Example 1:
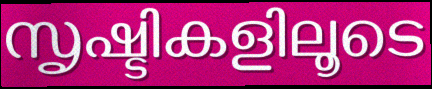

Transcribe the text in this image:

സൃഷ്ടികളിലൂടെ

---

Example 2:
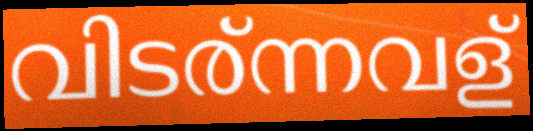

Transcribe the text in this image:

വിടര്ന്നവള്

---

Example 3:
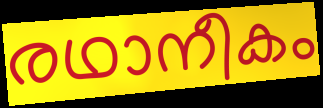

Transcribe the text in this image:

രഥാനീകം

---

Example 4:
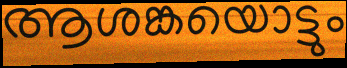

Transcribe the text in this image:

ആശങ്കയൊട്ടും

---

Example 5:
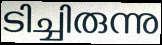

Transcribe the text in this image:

ടിച്ചിരുന്നു